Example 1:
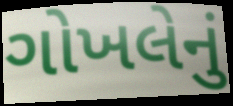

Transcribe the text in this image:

ગોખલેનું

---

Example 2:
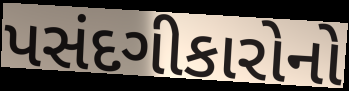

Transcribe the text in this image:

પસંદગીકારોનો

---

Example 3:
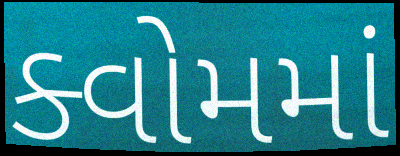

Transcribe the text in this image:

ક્વોમમાં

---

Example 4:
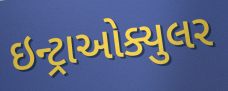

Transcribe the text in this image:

ઇન્ટ્રાઓક્યુલર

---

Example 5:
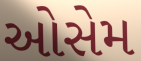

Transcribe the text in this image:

ઓસેમ